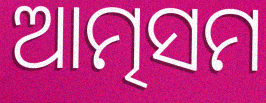
ଆତ୍ମସମ